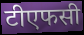
टीएफसी